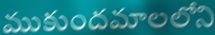
ముకుందమాలలోని